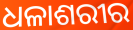
ଧଳାଶରୀର